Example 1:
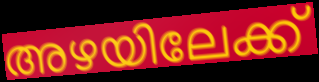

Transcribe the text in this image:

അഴയിലേക്ക്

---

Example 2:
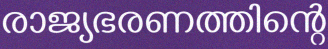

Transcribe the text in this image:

രാജ്യഭരണത്തിന്റെ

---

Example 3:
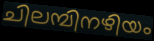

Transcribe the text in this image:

ചിലമ്പിനഴിയം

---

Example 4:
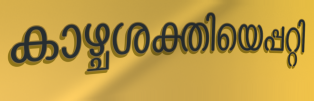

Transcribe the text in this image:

കാഴ്ചശക്തിയെപ്പറ്റി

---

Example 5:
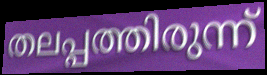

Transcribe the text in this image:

തലപ്പത്തിരുന്ന്